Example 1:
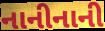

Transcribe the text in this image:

નાનીનાની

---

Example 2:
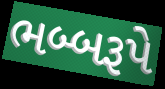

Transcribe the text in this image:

ભબ્બરૂપે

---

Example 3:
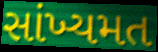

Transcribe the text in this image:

સાંખ્યમત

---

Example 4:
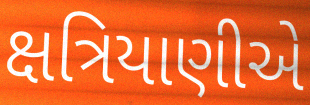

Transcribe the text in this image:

ક્ષત્રિયાણીએ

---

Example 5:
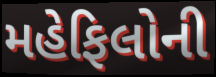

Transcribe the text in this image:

મહેફિલોની